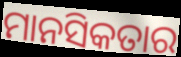
ମାନସିକତାର